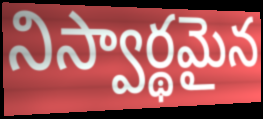
నిస్వార్థమైన